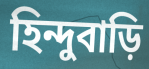
হিন্দুবাড়ি